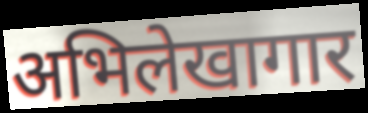
अभिलेखागार